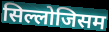
सिल्लोजिसम